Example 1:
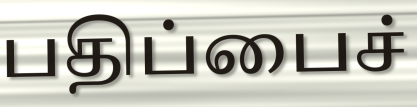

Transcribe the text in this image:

பதிப்பைச்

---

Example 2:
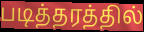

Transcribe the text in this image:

படித்தரத்தில்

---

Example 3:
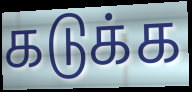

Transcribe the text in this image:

கடுக்க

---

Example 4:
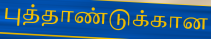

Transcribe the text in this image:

புத்தாண்டுக்கான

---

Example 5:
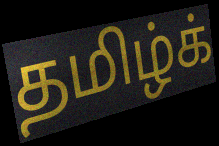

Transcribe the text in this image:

தமிழ்க்